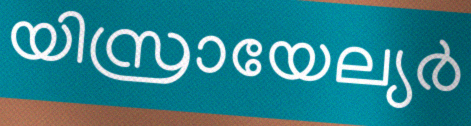
യിസ്രായേല്യർ